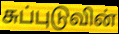
சுப்புடுவின்